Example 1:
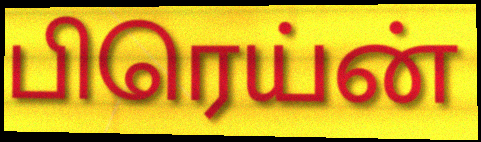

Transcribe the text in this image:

பிரெய்ன்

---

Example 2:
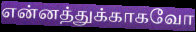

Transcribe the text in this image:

என்னத்துக்காகவோ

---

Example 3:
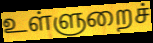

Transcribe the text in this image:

உள்ளுறைச்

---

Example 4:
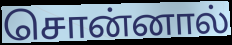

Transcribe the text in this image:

சொன்னால்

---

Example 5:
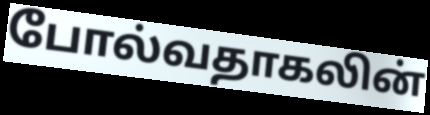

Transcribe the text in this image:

போல்வதாகலின்